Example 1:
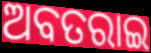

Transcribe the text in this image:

ଅବତରାଇ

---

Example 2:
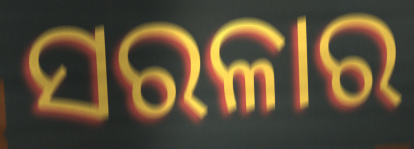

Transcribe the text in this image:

ସରଳାର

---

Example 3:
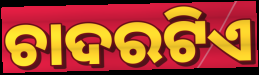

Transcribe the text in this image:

ଚାଦରଟିଏ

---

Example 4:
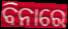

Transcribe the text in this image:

ବିନାରେ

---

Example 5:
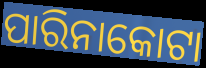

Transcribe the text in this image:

ପାରିନାକୋଟା